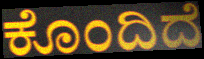
ಕೊಂದಿದೆ